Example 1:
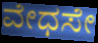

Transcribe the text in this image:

ವೇಧಸೇ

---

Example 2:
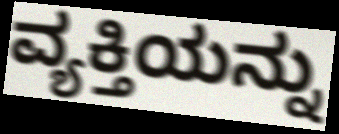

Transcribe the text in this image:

ವ್ಯಕ್ತಿಯನ್ನು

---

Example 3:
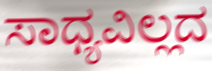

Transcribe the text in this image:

ಸಾಧ್ಯವಿಲ್ಲದ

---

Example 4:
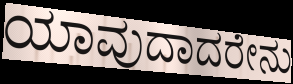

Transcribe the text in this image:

ಯಾವುದಾದರೇನು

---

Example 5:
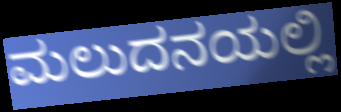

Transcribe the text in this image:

ಮಲುದನಯಲ್ಲಿ